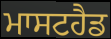
ਮਾਸਟਹੈਡ